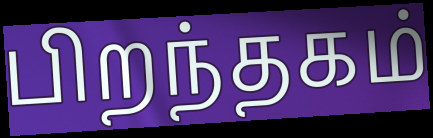
பிறந்தகம்